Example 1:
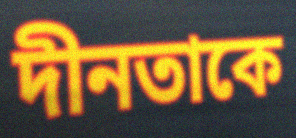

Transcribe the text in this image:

দীনতাকে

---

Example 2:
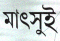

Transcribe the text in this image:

মাৎসুই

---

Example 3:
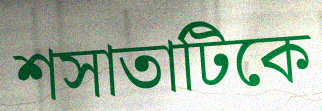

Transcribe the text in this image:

শসাতাটিকে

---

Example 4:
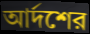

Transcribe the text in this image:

আর্দশের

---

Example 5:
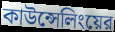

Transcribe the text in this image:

কাউন্সেলিংয়ের